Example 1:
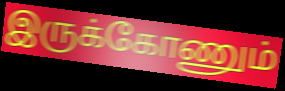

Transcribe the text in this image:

இருக்கோணும்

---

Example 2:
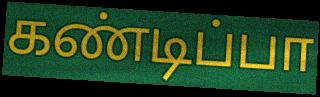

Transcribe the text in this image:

கண்டிப்பா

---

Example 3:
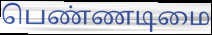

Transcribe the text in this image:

பெண்ணடிமை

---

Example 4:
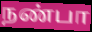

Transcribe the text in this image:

நண்பா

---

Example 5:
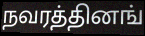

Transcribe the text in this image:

நவரத்தினங்